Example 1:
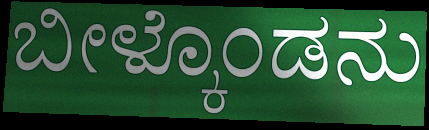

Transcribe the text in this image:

ಬೀಳ್ಕೊಂಡನು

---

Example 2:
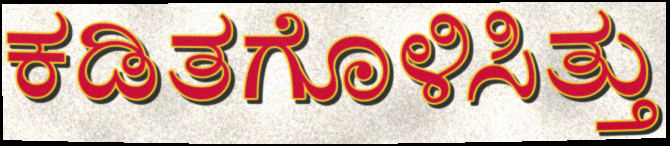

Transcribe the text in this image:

ಕಡಿತಗೊಳಿಸಿತ್ತು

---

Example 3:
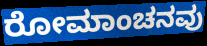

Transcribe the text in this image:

ರೋಮಾಂಚನವು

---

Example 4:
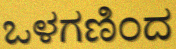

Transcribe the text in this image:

ಒಳಗಣಿಂದ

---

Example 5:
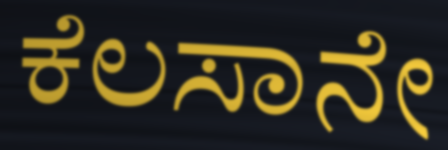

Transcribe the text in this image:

ಕೆಲಸಾನೇ